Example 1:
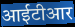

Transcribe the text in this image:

आईटीआर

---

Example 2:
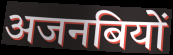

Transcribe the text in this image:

अजनबियों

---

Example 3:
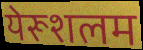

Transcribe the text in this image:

येरूशलम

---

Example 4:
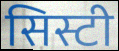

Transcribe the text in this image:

सिस्टी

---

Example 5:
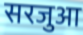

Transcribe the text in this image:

सरजुआ